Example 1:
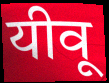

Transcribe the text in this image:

यीवू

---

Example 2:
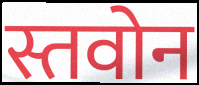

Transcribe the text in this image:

स्तवोन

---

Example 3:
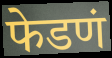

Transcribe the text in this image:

फेडणं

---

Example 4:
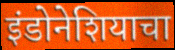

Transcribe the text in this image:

इंडोनेशियाचा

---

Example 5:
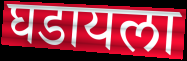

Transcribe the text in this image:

घडायला